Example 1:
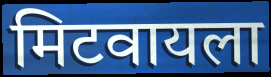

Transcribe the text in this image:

मिटवायला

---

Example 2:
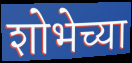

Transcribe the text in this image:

शोभेच्या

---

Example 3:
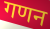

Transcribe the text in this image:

गणन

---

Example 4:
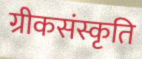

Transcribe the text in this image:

ग्रीकसंस्कृति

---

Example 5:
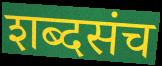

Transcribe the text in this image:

शब्दसंच